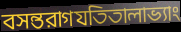
বসন্তরাগযতিতালাভ্যাং